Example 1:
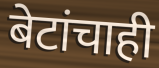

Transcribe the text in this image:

बेटांचाही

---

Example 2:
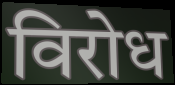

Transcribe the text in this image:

विरोध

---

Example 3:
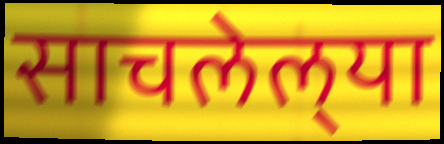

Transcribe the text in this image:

साचलेल्या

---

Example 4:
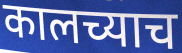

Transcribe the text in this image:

कालच्याच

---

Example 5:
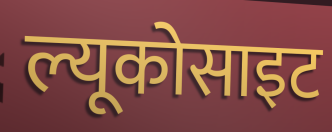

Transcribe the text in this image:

ल्यूकोसाइट